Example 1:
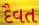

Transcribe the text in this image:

દૈવત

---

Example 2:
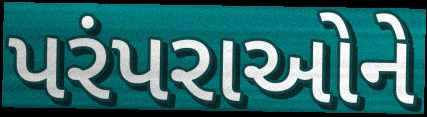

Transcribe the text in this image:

પરંપરાઓને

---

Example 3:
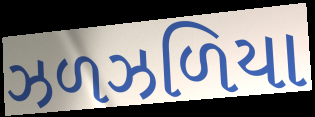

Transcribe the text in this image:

ઝળઝળિયા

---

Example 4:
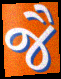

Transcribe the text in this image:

જૈ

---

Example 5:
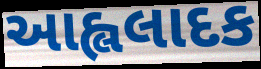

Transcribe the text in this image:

આહ્લલાદક